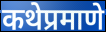
कथेप्रमाणे